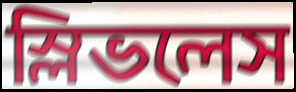
স্লিভলেস